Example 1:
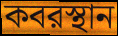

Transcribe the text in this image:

কবরস্থান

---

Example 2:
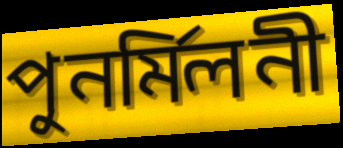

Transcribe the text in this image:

পুনর্মিলনী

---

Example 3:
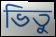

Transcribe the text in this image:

ভিতু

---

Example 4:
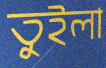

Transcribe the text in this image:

তুইলা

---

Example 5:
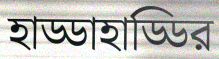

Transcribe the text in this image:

হাড্ডাহাড্ডির